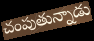
చంపుతున్నాడు